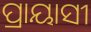
ପ୍ରାୟାସୀ